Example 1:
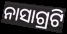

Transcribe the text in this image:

ନାସାଗ୍ରଟି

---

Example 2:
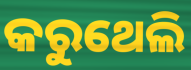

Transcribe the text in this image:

କରୁଥେଲି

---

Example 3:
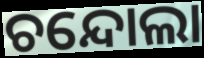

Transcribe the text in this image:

ଚନ୍ଦୋଲା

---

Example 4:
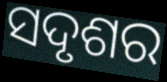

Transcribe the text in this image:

ସଦୃଶର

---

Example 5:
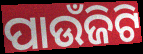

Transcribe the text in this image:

ପାଉଁଜିଟି